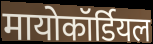
मायोकॉर्डियल